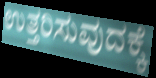
ಉತ್ತರಿಸುವುದಕ್ಕೆ